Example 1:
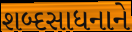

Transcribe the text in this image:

શબ્દસાધનાને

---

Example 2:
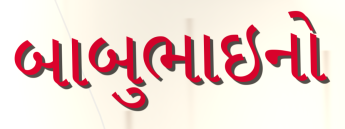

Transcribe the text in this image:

બાબુભાઇનો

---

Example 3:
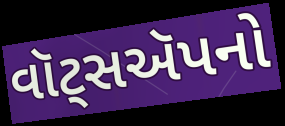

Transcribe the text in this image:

વૉટ્સઍપનો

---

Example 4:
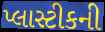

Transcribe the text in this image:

પ્લાસ્ટીકની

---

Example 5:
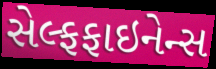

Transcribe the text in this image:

સેલ્ફફાઇનેન્સ